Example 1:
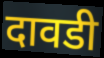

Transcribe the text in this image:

दावडी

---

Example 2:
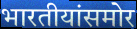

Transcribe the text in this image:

भारतीयांसमोर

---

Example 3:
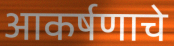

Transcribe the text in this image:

आकर्षणाचे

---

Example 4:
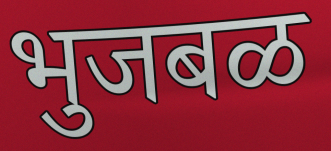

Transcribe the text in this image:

भुजबळ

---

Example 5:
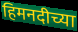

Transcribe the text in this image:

हिमनदीच्या